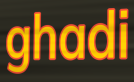
ghadi